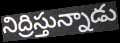
నిద్రిస్తున్నాడు